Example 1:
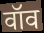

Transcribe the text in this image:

वॉव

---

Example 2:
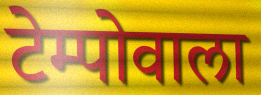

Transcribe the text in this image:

टेम्पोवाला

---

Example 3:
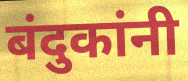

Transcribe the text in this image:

बंदुकांनी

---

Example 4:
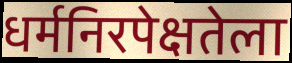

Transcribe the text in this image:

धर्मनिरपेक्षतेला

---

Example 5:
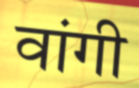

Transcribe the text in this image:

वांगी